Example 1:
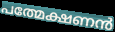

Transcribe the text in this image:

പത്മേക്ഷണൻ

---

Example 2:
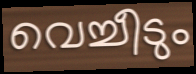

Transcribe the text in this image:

വെച്ചീടും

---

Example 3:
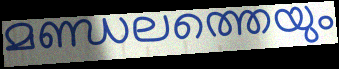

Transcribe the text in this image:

മണ്ഡലത്തെയും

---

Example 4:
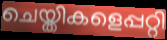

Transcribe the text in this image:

ചെയ്തികളെപ്പറ്റി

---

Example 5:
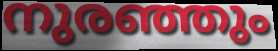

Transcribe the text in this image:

നുരഞ്ഞും